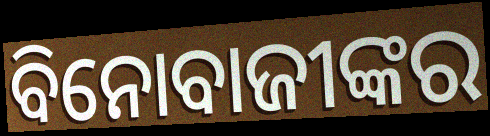
ବିନୋବାଜୀଙ୍କର